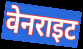
वेनराइट